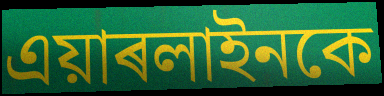
এয়াৰলাইনকে